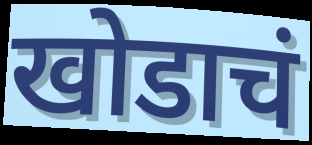
खोडाचं